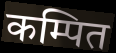
कम्पित